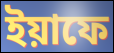
ইয়াফে